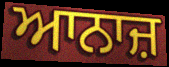
ਆਨਾਜ਼